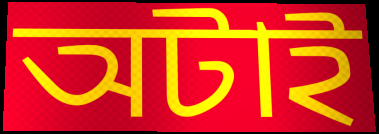
অটাই